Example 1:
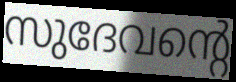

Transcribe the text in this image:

സുദേവന്റെ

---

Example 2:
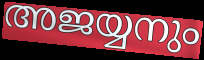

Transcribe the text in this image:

അജയ്യനും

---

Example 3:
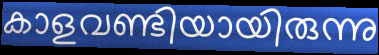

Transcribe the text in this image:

കാളവണ്ടിയായിരുന്നു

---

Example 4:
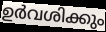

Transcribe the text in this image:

ഉർവശിക്കും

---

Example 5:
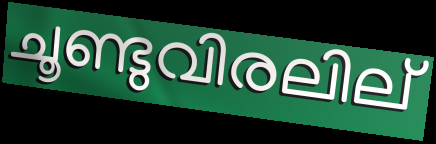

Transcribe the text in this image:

ചൂണ്ടുവിരലില്